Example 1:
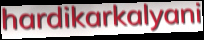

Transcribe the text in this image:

hardikarkalyani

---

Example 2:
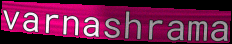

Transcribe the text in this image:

varnashrama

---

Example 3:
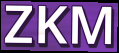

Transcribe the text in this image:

ZKM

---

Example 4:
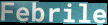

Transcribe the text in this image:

Febrile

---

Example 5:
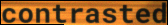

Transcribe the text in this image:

contrasted